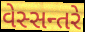
વેસ્સન્તરે